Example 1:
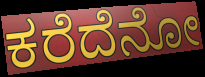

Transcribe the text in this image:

ಕರೆದೆನೋ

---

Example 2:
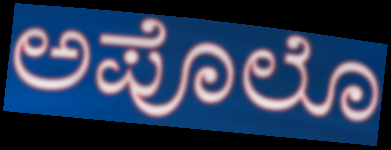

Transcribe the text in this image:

ಅಪೊಲೊ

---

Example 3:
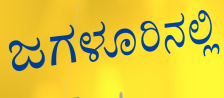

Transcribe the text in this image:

ಜಗಳೂರಿನಲ್ಲಿ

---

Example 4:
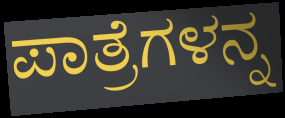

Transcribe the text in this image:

ಪಾತ್ರೆಗಳನ್ನ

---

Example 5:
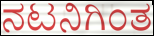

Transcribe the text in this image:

ನಟನಿಗಿಂತ